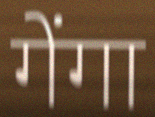
गेंगा